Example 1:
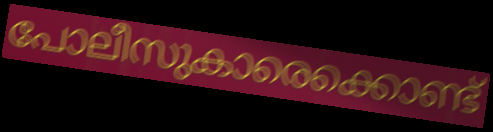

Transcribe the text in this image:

പോലീസുകാരെക്കൊണ്ട്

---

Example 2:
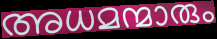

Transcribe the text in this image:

അധമന്മാരും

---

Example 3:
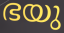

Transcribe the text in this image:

ഭയു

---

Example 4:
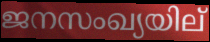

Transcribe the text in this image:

ജനസംഖ്യയില്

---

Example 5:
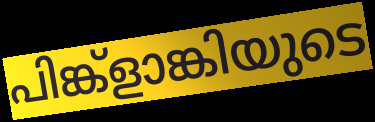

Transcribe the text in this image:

പിങ്ക്ളാങ്കിയുടെ